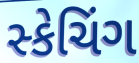
સ્કેચિંગ